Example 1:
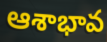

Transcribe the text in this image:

ఆశాభావ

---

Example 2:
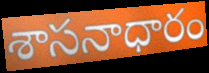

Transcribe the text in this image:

శాసనాధారం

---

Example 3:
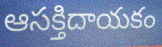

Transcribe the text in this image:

ఆసక్తిదాయకం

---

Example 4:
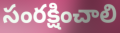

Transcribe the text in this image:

సంరక్షించాలి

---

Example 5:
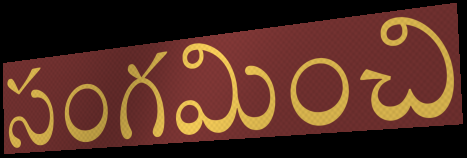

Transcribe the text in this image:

సంగమించి